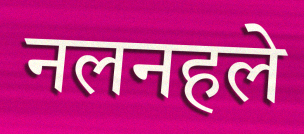
नलनहले